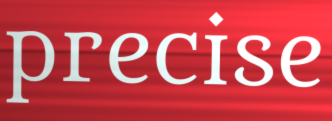
precise